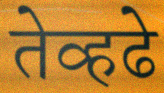
तेव्हढे